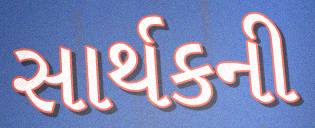
સાર્થકની